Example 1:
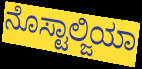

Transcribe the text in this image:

ನೊಸ್ಟಾಲ್ಜಿಯಾ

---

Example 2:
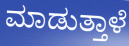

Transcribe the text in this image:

ಮಾಡುತ್ತಾಳೆ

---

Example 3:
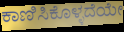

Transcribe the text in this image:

ಕಾಣಿಸಿಕೊಳ್ಳದೆಯೇ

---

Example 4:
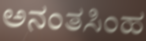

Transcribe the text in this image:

ಅನಂತಸಿಂಹ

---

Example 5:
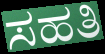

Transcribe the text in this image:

ಸಹತಿ